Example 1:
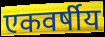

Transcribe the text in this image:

एकवर्षीय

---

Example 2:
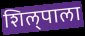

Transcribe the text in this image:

शिल्पाला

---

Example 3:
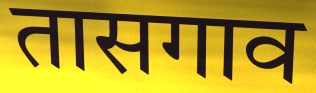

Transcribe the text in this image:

तासगाव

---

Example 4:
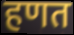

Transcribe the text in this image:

हणत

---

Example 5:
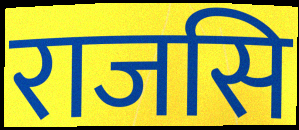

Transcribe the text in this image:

राजसि